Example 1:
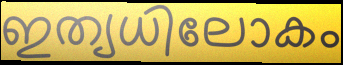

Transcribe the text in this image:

ഇത്യധിലോകം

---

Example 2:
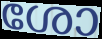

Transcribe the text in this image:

ശോ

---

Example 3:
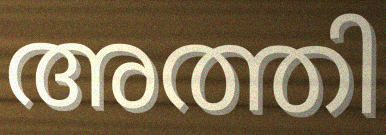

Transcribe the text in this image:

അത്തി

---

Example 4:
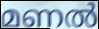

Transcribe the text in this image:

മണൽ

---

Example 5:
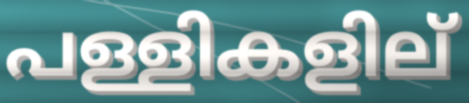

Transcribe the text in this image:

പള്ളികളില്